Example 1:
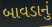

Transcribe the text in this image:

બાવડાનું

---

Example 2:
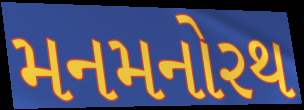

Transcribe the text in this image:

મનમનોરથ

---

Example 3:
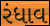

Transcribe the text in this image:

રંધાવ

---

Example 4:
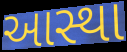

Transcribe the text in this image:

આસ્થા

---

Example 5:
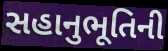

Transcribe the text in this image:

સહાનુભૂતિની